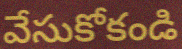
వేసుకోకండి